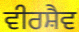
ਵੀਰਸ਼ੈਵ